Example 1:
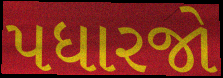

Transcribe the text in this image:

પધારજો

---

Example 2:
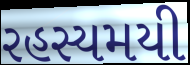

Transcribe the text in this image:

રહસ્યમયી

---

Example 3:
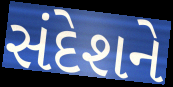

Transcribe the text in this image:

સંદેશને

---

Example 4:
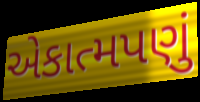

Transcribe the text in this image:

એકાત્મપણું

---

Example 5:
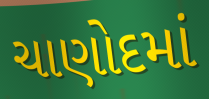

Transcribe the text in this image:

ચાણોદમાં